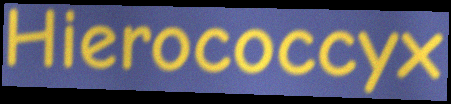
Hierococcyx